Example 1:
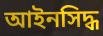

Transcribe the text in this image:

আইনসিদ্ধ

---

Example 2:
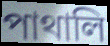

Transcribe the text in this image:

পাথালি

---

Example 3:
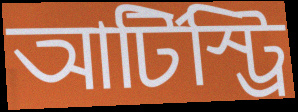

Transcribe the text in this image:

আর্টিস্ট্রি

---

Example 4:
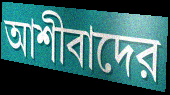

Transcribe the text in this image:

আশীবাদের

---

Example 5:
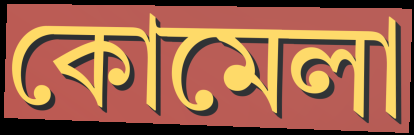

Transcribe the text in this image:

কোমেলা